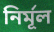
নির্মূল